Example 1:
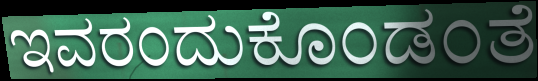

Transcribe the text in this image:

ಇವರಂದುಕೊಂಡಂತೆ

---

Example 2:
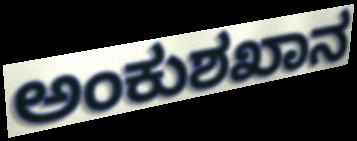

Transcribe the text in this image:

ಅಂಕುಶಖಾನ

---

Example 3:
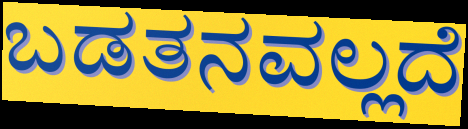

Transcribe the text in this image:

ಬಡತನವಲ್ಲದೆ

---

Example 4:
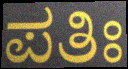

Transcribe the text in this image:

ಪತಿಃ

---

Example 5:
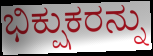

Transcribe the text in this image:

ಭಿಕ್ಷುಕರನ್ನು